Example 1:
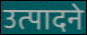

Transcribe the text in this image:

उत्पादने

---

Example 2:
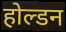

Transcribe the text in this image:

होल्डन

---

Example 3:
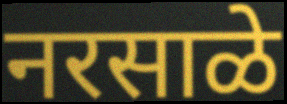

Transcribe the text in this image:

नरसाळे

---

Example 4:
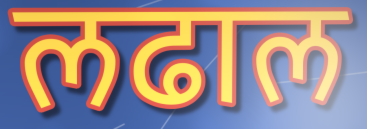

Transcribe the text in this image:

लढाल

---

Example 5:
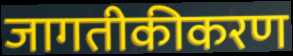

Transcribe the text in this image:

जागतीकीकरण